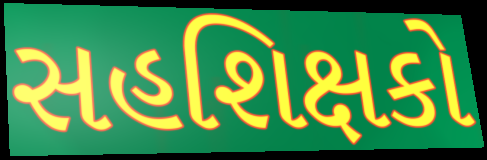
સહશિક્ષકો